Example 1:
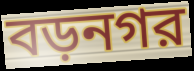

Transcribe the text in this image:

বড়নগর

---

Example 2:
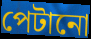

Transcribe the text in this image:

পেটানো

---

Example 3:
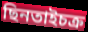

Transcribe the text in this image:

ছিনতাইচক্র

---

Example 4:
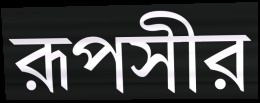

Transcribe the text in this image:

রূপসীর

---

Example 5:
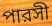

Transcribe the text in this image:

পারসী